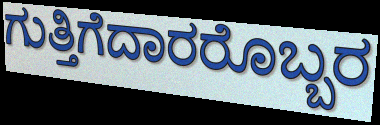
ಗುತ್ತಿಗೆದಾರರೊಬ್ಬರ